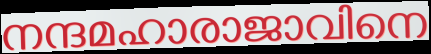
നന്ദമഹാരാജാവിനെ